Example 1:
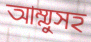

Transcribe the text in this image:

আম্মুসহ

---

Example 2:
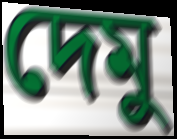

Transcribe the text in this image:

দেমু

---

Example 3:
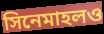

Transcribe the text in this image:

সিনেমাহলও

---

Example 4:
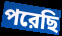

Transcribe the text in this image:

পরেছি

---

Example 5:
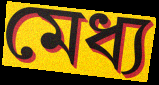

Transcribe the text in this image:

মেধ্য